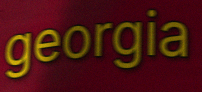
georgia